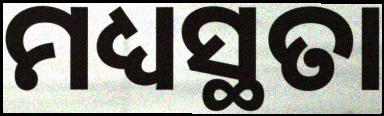
ମଧ୍ୟସ୍ଥତା